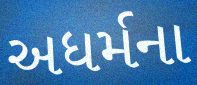
અધર્મના